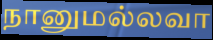
நானுமல்லவா